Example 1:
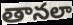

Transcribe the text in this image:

తానలా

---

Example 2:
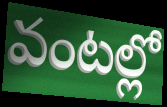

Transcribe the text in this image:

వంటల్లో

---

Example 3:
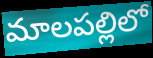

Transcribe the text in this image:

మాలపల్లిలో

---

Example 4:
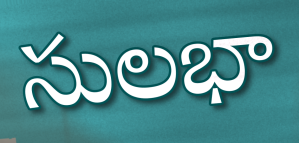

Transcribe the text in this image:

సులభా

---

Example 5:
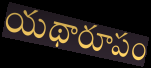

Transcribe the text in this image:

యథారూపం